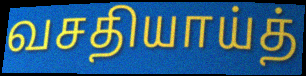
வசதியாய்த்